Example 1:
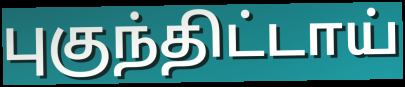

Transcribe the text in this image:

புகுந்திட்டாய்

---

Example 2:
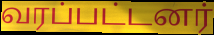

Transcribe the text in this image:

வரப்பட்டனர்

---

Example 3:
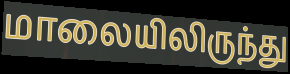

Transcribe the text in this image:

மாலையிலிருந்து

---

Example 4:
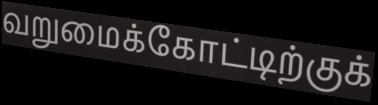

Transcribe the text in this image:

வறுமைக்கோட்டிற்குக்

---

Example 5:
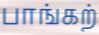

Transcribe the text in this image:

பாங்கற்